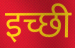
इच्छी